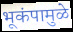
भूकंपामुळे